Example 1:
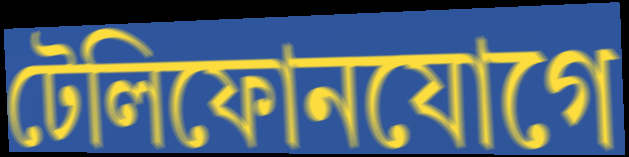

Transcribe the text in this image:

টেলিফোনযোগে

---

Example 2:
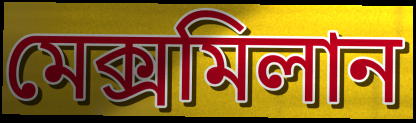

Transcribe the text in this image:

মেক্সমিলান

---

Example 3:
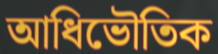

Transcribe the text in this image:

আধিভৌতিক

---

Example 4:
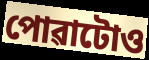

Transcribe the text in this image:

পোৱাটোও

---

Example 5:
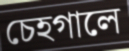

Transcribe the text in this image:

চেহগালে